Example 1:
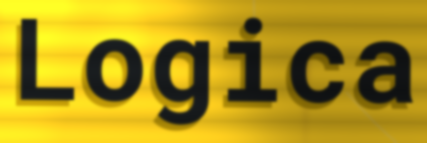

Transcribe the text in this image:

Logica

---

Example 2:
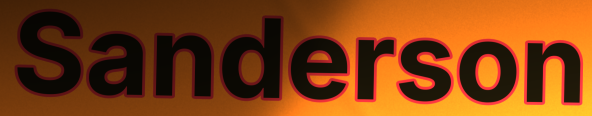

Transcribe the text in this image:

Sanderson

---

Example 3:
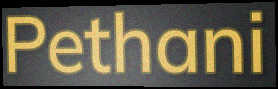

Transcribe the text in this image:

Pethani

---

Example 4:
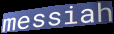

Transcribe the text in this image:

messiah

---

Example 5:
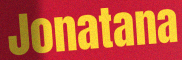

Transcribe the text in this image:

Jonatana